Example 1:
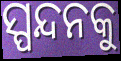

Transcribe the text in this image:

ସ୍ପନ୍ଦନକୁ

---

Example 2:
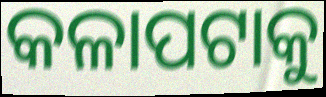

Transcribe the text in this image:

କଳାପଟାକୁ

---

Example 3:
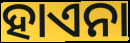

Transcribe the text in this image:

ହାଏନା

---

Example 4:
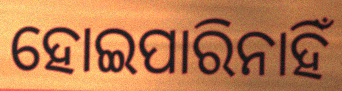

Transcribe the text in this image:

ହୋଇପାରିନାହିଁ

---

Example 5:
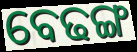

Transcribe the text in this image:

ବେଢଙ୍ଗ